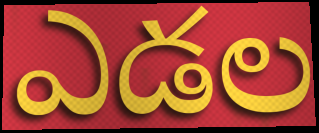
ఎడల